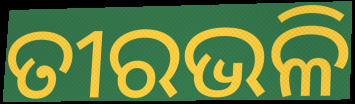
ତୀରଭଳି